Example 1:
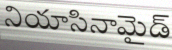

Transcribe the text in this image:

నియాసినామైడ్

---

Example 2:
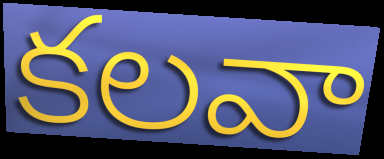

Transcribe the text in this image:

కలవా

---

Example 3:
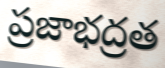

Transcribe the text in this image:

ప్రజాభద్రత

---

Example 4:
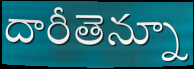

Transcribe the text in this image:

దారీతెన్నూ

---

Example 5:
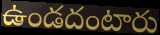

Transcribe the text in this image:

ఉండదంటారు